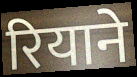
रियाने